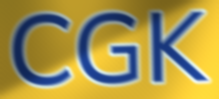
CGK